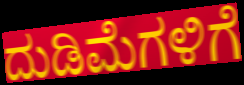
ದುಡಿಮೆಗಳಿಗೆ